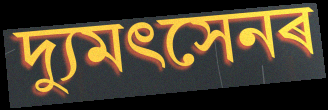
দ্যুমৎসেনৰ